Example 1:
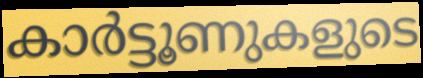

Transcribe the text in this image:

കാർട്ടൂണുകളുടെ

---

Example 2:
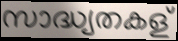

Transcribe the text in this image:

സാദ്ധ്യതകള്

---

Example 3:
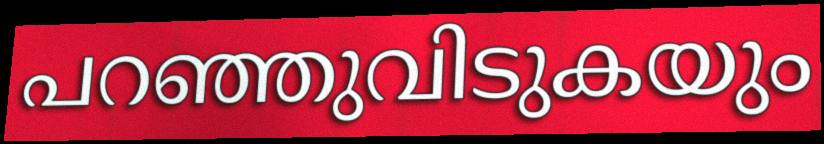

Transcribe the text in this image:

പറഞ്ഞുവിടുകയും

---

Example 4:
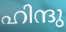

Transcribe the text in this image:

ഹിന്ദു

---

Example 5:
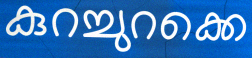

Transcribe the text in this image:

കുറച്ചുറക്കെ